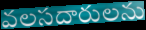
వలసదారులను